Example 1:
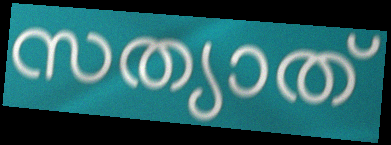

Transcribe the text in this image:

സത്യാത്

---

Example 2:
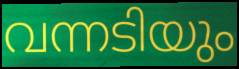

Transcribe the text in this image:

വന്നടിയും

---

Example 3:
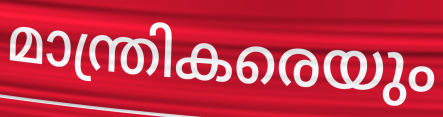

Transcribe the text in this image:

മാന്ത്രികരെയും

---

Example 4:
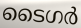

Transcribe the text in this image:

ടൈഗർ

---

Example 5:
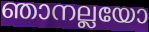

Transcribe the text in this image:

ഞാനല്ലയോ